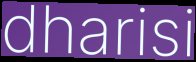
dharisi